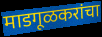
माडगूळकरांचा